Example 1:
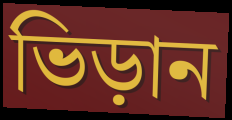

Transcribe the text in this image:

ভিড়ান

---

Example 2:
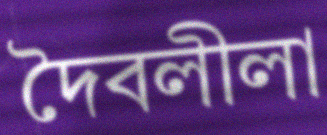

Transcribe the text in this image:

দৈবলীলা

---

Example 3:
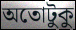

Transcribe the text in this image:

অতোটুকু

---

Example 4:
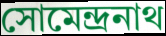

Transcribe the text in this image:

সোমেন্দ্রনাথ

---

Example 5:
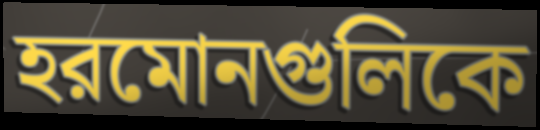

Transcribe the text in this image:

হরমোনগুলিকে